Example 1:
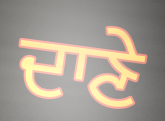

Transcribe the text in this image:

ਦਾਣੇ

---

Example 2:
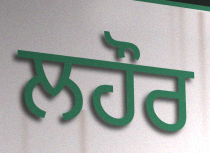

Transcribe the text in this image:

ਲਹੌਰ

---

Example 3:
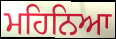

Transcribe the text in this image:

ਮਹਿਨਿਆ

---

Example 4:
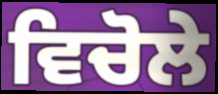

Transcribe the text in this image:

ਵਿਚੋਲੇ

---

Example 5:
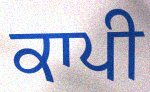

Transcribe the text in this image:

ਕਾਪੀ